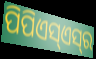
ପିପିଏସ୍ଏସ୍‌ର